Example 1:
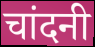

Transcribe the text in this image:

चांदनी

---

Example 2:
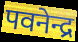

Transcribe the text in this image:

पवनेन्द्र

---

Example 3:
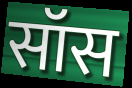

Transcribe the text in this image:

सॉस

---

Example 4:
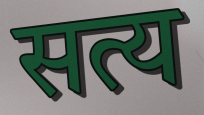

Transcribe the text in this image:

सत्य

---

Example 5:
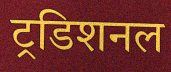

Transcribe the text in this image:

ट्रडिशनल